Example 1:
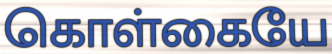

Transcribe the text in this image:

கொள்கையே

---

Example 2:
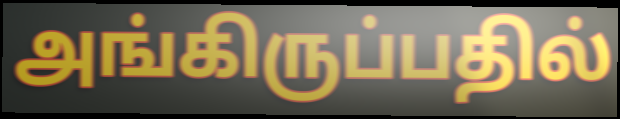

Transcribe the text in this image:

அங்கிருப்பதில்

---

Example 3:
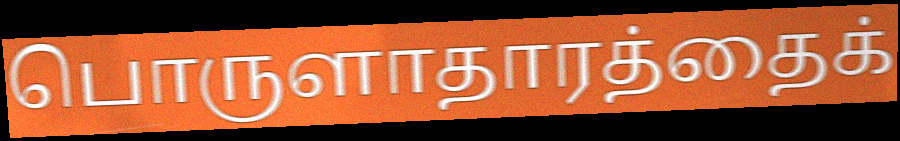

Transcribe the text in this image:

பொருளாதாரத்தைக்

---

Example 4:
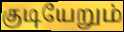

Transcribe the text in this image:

குடியேறும்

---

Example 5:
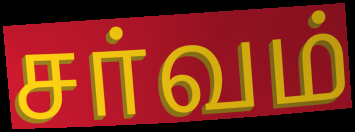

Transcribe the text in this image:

சர்வம்